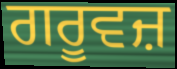
ਗਰੂਵਜ਼